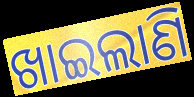
ଖାଇଲାଣି